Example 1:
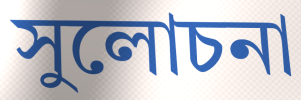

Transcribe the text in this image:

সুলোচনা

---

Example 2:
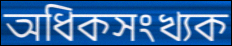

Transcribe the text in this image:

অধিকসংখ্যক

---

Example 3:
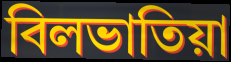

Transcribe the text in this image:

বিলভাতিয়া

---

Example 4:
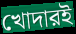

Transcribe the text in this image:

খোদারই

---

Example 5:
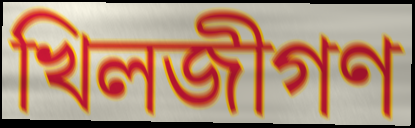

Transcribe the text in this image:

খিলজীগণ